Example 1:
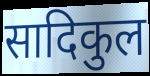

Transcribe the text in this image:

सादिकुल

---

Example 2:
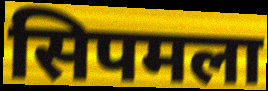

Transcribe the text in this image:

सिपमला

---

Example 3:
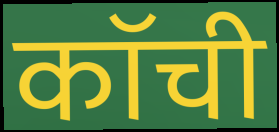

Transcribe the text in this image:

कॉची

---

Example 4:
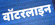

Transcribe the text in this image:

वॉटरलाइन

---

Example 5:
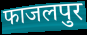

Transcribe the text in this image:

फाजलपुर